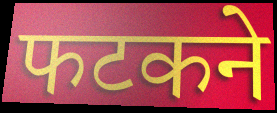
फटकने